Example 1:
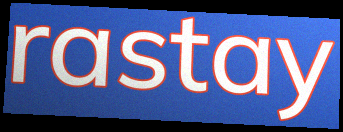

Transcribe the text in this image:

rastay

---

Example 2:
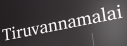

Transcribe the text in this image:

Tiruvannamalai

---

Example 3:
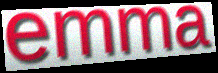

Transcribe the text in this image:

emma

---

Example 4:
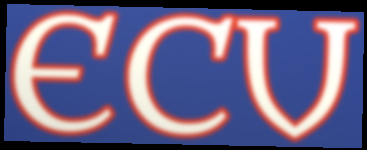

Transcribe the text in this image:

ECU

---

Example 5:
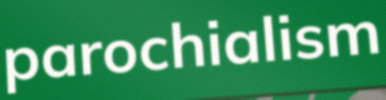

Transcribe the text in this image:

parochialism